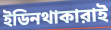
ইডিনথাকারাই